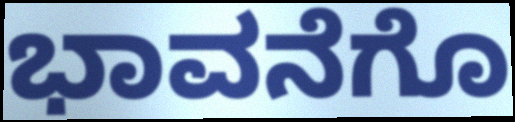
ಭಾವನೆಗೊ